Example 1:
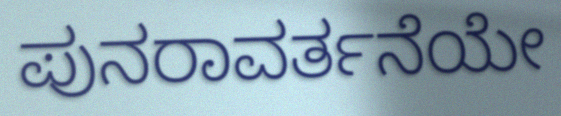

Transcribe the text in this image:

ಪುನರಾವರ್ತನೆಯೇ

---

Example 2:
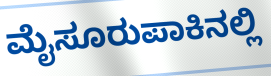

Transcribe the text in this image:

ಮೈಸೂರುಪಾಕಿನಲ್ಲಿ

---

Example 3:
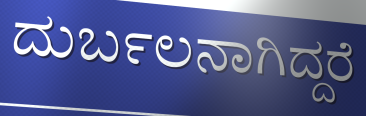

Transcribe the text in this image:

ದುರ್ಬಲನಾಗಿದ್ದರೆ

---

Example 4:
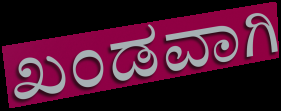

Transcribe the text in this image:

ಖಂಡವಾಗಿ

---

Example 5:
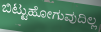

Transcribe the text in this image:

ಬಿಟ್ಟುಹೋಗುವುದಿಲ್ಲ